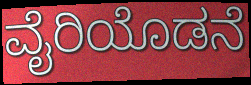
ವೈರಿಯೊಡನೆ